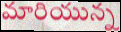
మారియున్న